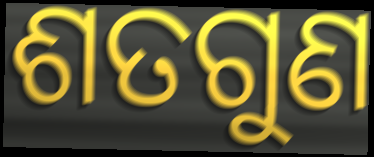
ଶତଗୁଣ